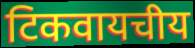
टिकवायचीय